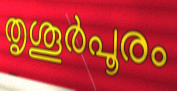
തൃശൂർപൂരം